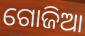
ଗୋଜିଆ